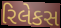
રિલેકસ